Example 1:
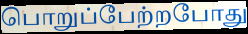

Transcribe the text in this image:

பொறுப்பேற்றபோது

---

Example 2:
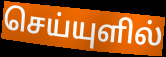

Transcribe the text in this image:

செய்யுளில்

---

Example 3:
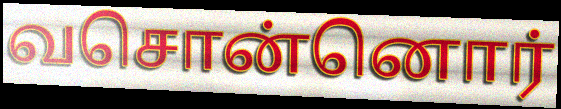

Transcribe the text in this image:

வசொன்னொர்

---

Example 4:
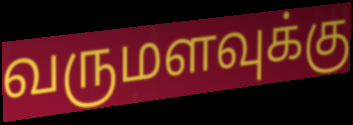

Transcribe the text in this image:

வருமளவுக்கு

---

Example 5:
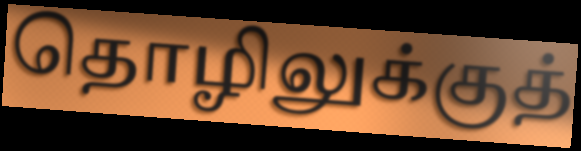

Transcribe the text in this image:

தொழிலுக்குத்